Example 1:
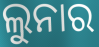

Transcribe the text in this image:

ଲୁନାର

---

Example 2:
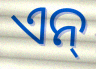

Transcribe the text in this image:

ଏନ୍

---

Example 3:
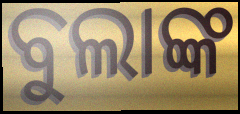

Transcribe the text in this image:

ବୁଲାଙ୍କ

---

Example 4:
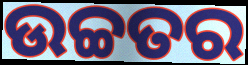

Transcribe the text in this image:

ଉଚ୍ଚତର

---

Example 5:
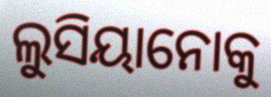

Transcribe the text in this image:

ଲୁସିୟାନୋକୁ